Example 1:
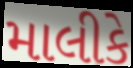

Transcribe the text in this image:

માલીકે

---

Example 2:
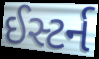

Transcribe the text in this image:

ઈસ્ટર્ન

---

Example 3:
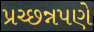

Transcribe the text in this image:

પ્રચ્છન્નપણે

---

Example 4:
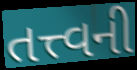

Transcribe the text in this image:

તત્ત્વની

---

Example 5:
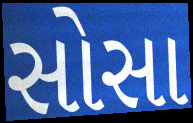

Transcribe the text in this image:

સોસા